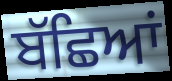
ਬੱਛਿਆਂ